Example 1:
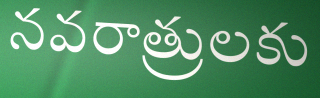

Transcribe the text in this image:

నవరాత్రులకు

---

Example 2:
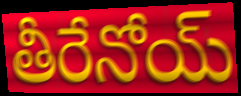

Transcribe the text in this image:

తీరేనోయ్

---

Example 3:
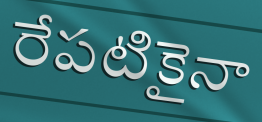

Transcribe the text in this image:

రేపటికైనా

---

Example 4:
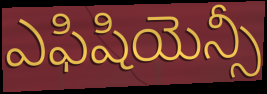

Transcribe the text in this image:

ఎఫిషియెన్సీ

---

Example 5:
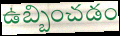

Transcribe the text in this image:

ఉబ్బించడం